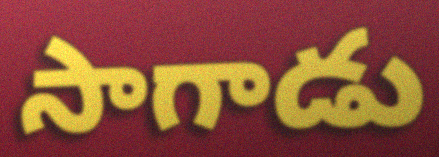
సాగాడు